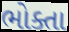
ભોક્તા